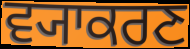
ਵ੍ਯਾਕਰਣ